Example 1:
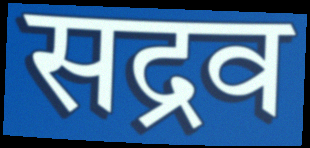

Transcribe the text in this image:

सद्रव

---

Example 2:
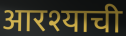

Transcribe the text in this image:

आरश्याची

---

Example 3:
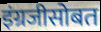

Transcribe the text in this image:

इंग्रजीसोबत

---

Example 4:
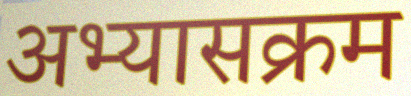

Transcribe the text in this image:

अभ्यासक्रम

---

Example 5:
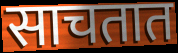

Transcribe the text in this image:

साचतात